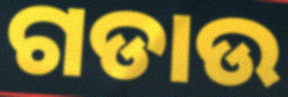
ଗଡାଉ